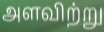
அளவிற்று